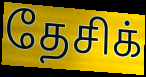
தேசிக்